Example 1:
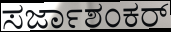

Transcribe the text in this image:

ಸರ್ಜಾಶಂಕರ್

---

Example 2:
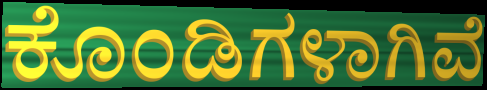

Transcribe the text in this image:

ಕೊಂಡಿಗಳಾಗಿವೆ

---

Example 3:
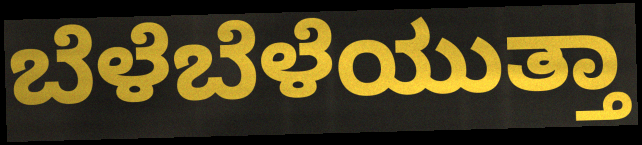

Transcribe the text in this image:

ಬೆಳೆಬೆಳೆಯುತ್ತಾ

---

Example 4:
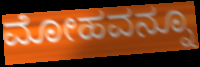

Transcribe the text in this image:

ಮೋಹವನ್ನೂ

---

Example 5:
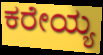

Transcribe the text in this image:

ಕರೇಯ್ಯ